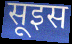
सूइस